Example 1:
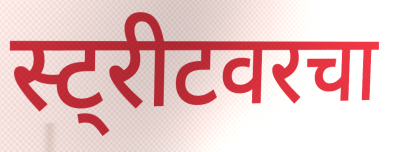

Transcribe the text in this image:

स्ट्रीटवरचा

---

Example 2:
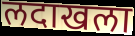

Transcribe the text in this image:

लदाखला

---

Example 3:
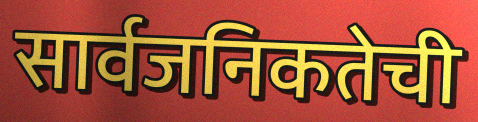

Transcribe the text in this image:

सार्वजनिकतेची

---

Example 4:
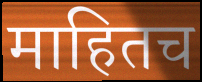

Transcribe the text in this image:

माहितच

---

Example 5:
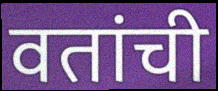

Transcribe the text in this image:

वतांची